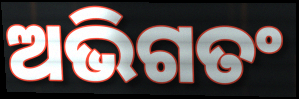
ଅଭିଗତଂ